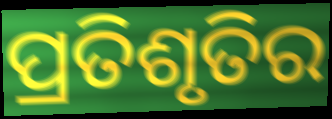
ପ୍ରତିଶୃତିର